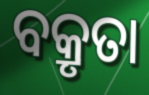
ବକ୍ରୃତା